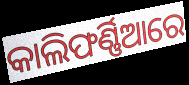
କାଲିଫର୍ଣ୍ଣିଆରେ